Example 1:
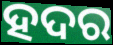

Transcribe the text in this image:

ହଦର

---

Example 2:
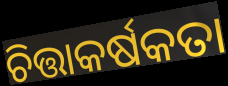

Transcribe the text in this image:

ଚିତ୍ତାକର୍ଷକତା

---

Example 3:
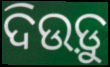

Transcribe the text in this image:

ଦିଉଡ଼ୁ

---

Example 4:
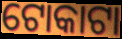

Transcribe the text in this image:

ଟୋକାଟା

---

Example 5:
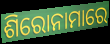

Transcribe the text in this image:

ଶିରୋନାମାରେ